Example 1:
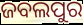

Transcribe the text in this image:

ଜବଲପୁର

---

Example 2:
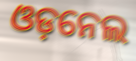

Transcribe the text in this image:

ଓଡ଼ନେଲ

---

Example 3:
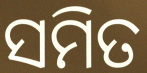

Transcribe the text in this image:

ସମିତ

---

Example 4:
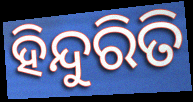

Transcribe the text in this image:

ହିନ୍ଦୁରିତି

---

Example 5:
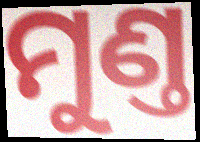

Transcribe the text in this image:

ମୁଣ୍ତ